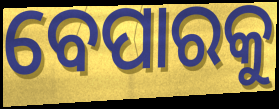
ବେପାରକୁ